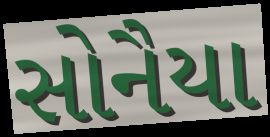
સોનૈયા